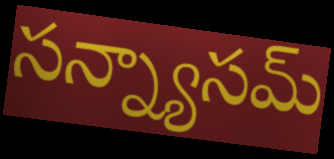
సన్న్యాసమ్